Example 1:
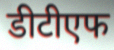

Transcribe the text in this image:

डीटीएफ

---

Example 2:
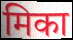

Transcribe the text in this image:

मिका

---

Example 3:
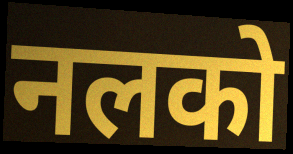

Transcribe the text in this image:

नलको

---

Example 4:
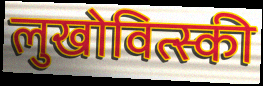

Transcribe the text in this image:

लुखोवित्स्की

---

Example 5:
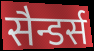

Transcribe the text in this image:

सैन्डर्स